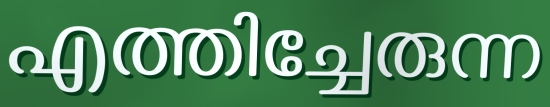
എത്തിച്ചേരുന്ന